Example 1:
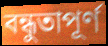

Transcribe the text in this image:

বন্ধুতাপূর্ণ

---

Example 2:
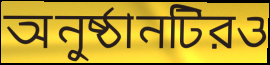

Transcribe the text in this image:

অনুষ্ঠানটিরও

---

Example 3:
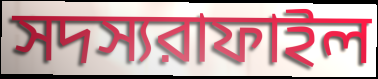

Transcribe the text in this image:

সদস্যরাফাইল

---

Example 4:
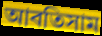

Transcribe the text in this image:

আবতিসাম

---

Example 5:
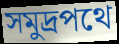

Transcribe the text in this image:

সমুদ্রপথে